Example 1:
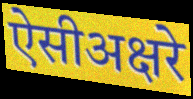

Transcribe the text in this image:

ऐसीअक्षरे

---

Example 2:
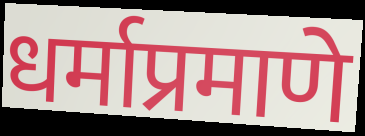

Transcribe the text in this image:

धर्माप्रमाणे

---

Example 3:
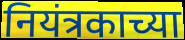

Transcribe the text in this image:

नियंत्रकाच्या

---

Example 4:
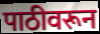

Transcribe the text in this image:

पाठीवरून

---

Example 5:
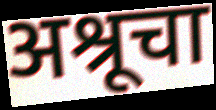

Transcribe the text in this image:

अश्रूचा